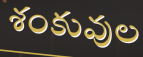
శంకువుల